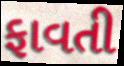
ફાવતી